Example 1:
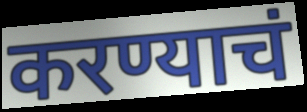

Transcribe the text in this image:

करण्याचं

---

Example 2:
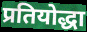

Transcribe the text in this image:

प्रतियोद्धा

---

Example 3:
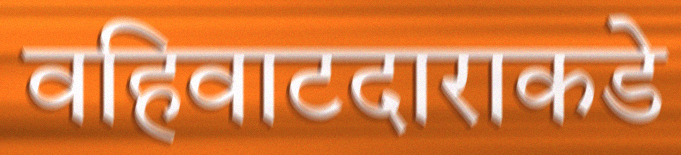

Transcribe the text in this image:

वहिवाटदाराकडे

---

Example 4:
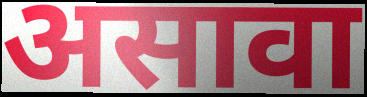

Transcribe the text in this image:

असावा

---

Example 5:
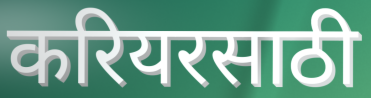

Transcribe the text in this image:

करियरसाठी